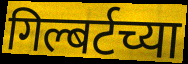
गिल्बर्टच्या